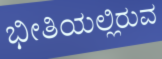
ಭೀತಿಯಲ್ಲಿರುವ